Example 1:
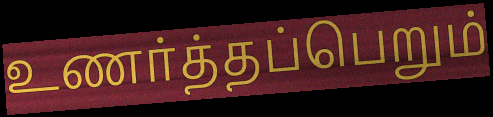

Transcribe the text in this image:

உணர்த்தப்பெறும்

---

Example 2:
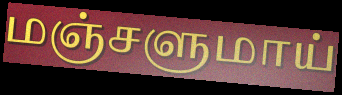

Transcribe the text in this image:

மஞ்சளுமாய்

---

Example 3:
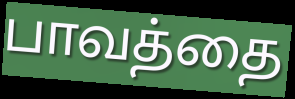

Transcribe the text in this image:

பாவத்தை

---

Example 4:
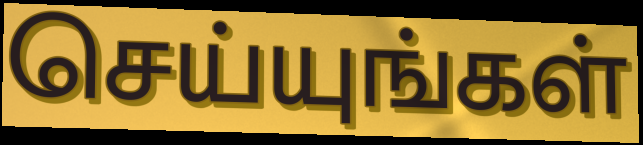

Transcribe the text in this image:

செய்யுங்கள்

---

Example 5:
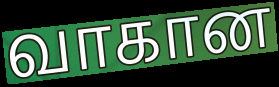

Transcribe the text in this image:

வாகான